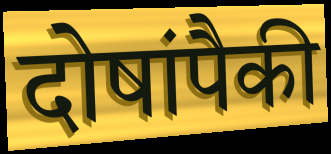
दोषांपैकी